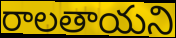
రాలతాయని